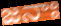
జనాః